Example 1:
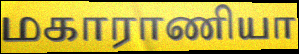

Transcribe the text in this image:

மகாராணியா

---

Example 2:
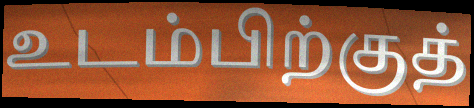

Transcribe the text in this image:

உடம்பிற்குத்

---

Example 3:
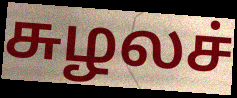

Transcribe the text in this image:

சுழலச்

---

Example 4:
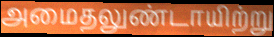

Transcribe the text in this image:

அமைதலுண்டாயிற்று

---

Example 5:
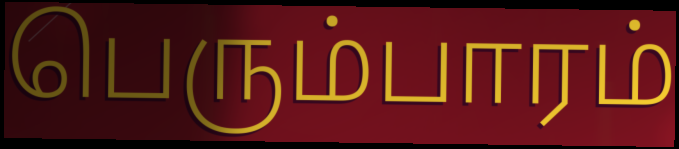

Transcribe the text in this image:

பெரும்பாரம்